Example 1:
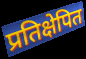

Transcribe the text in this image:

प्रतिक्षेपित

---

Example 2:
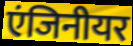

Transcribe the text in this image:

एंजिनीयर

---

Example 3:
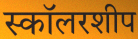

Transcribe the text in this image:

स्कॉलरशीप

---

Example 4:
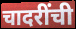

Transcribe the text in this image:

चादरींची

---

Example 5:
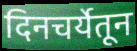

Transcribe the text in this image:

दिनचर्येतून